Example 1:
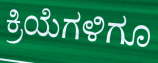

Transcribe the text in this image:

ಕ್ರಿಯೆಗಳಿಗೂ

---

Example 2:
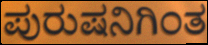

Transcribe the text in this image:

ಪುರುಷನಿಗಿಂತ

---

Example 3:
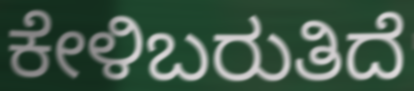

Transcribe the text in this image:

ಕೇಳಿಬರುತಿದೆ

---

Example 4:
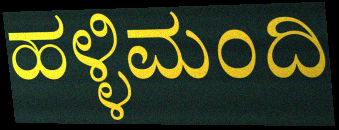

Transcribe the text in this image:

ಹಳ್ಳಿಮಂದಿ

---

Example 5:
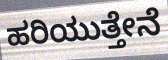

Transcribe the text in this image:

ಹರಿಯುತ್ತೇನೆ